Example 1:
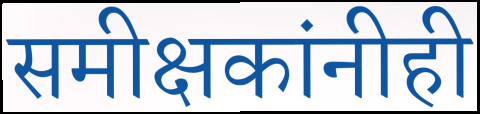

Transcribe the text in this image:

समीक्षकांनीही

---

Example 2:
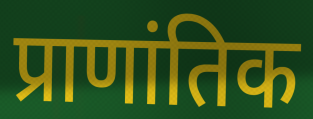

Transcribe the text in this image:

प्राणांतिक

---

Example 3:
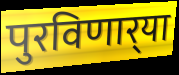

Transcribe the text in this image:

पुरविणार्‍या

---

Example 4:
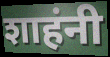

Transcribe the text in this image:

शाहंनी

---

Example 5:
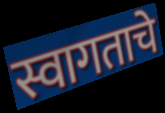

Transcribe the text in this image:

स्वागताचे